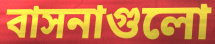
বাসনাগুলো